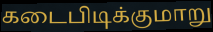
கடைபிடிக்குமாறு